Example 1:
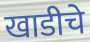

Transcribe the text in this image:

खाडीचे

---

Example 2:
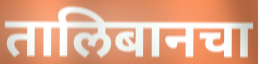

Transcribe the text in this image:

तालिबानचा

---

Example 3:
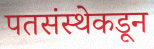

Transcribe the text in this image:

पतसंस्थेकडून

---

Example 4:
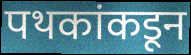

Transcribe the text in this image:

पथकांकडून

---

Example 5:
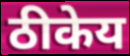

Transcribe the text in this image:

ठीकेय